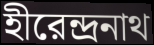
হীরেন্দ্রনাথ